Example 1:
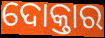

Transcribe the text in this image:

ଦୋକ୍ତାର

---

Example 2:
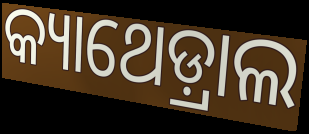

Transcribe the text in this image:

କ୍ୟାଥେଡ଼୍ରାଲ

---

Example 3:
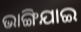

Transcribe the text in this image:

ଭାଙ୍ଗିଯାଇ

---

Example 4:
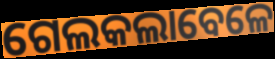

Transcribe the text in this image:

ଗେଲକଲାବେଳେ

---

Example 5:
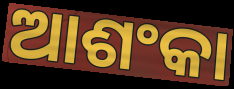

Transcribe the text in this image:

ଆଶଂକା